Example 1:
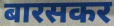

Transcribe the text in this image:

बारसकर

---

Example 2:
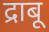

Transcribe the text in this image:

द्राबू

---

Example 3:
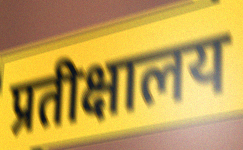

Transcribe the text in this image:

प्रतीक्षालय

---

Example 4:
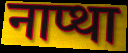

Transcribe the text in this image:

नाप्था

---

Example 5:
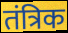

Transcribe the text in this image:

तंत्रिक